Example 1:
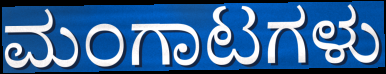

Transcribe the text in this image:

ಮಂಗಾಟಗಳು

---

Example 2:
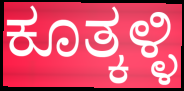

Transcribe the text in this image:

ಕೂತ್ಕಳ್ಳಿ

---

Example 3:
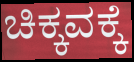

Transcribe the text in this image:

ಚಿಕ್ಕವಕ್ಕೆ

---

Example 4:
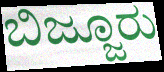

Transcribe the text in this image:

ಬಿಜ್ಜೂರು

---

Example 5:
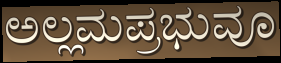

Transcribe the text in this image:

ಅಲ್ಲಮಪ್ರಭುವೂ